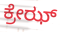
ಕ್ರೇಝ್